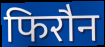
फिरौन